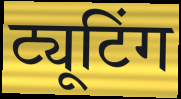
ट्यूटिंग